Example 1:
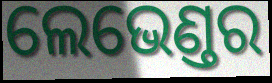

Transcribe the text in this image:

ଲେଭେଣ୍ଡର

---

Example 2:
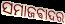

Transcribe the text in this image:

ସମାଜଵାଦର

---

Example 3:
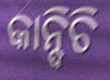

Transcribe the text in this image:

କାନ୍ଦିଚି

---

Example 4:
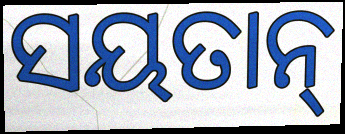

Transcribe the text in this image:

ସୟତାନ୍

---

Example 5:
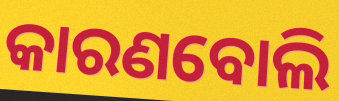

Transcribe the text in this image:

କାରଣବୋଲି